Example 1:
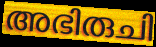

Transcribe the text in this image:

അഭിരുചി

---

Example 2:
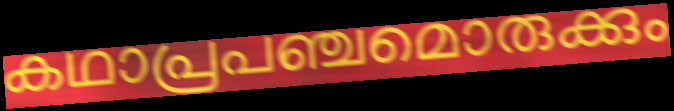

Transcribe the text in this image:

കഥാപ്രപഞ്ചമൊരുക്കും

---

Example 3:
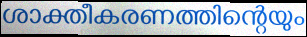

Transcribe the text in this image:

ശാക്തീകരണത്തിന്റെയും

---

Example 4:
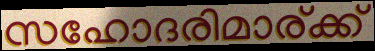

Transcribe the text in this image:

സഹോദരിമാര്ക്ക്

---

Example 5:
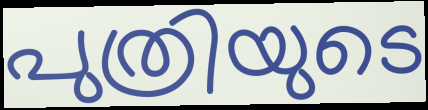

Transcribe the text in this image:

പുത്രിയുടെ